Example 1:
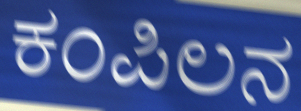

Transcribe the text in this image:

ಕಂಪಿಲನ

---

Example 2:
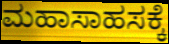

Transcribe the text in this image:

ಮಹಾಸಾಹಸಕ್ಕೆ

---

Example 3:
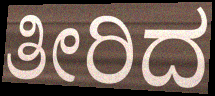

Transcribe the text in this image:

ತೀರಿದ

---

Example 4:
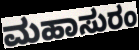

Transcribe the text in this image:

ಮಹಾಸುರಂ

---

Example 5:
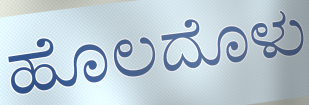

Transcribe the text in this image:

ಹೊಲದೊಳು